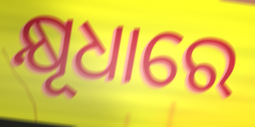
କ୍ଷୂଧାରେ